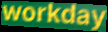
workday